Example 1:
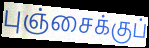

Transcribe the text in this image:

புஞ்சைக்குப்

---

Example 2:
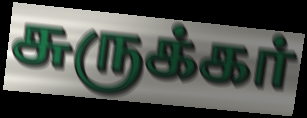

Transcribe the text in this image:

சுருக்கர்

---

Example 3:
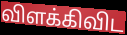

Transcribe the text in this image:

விளக்கிவிட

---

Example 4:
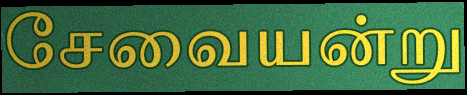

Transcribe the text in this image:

சேவையன்று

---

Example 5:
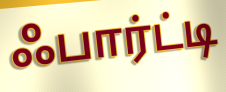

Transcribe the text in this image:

ஃபார்ட்டி